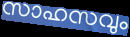
സാഹസവും